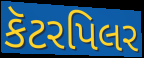
કૅટરપિલર